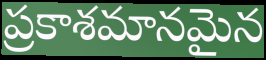
ప్రకాశమానమైన